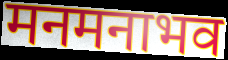
मनमनाभव